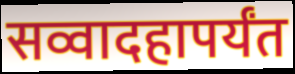
सव्वादहापर्यंत